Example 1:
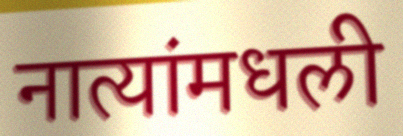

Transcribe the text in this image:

नात्यांमधली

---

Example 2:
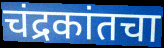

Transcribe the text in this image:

चंद्रकांतचा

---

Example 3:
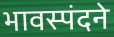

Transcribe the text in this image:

भावस्पंदने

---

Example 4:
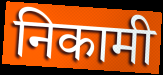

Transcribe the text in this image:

निकामी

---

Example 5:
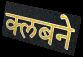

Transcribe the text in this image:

क्लबने